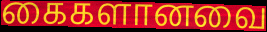
கைகளானவை